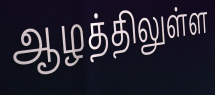
ஆழத்திலுள்ள